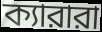
ক্যারারা